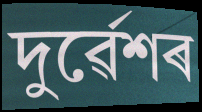
দুৰ্ৱেশৰ